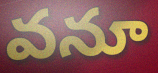
వనూ